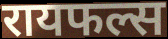
रायफल्स